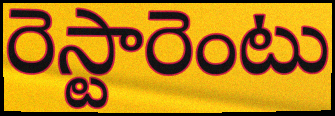
రెస్టారెంటు